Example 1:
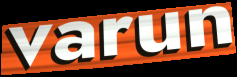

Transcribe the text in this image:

varun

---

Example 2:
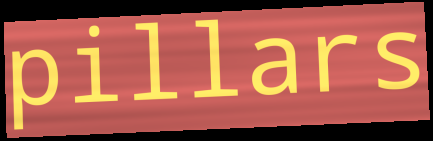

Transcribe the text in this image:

pillars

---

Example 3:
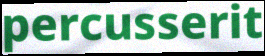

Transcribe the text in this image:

percusserit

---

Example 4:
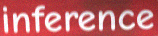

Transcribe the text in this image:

inference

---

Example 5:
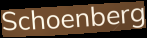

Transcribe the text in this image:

Schoenberg